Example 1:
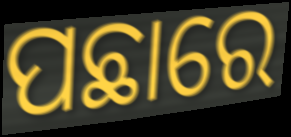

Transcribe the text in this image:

ପଛାରେ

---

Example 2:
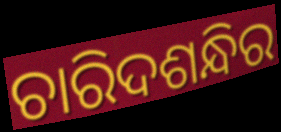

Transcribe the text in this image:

ଚାରିଦଶନ୍ଧିର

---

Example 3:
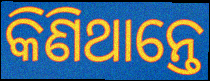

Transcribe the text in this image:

କିଣିଥାନ୍ତେ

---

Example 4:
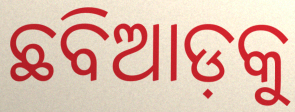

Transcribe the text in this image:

ଛବିଆଡ଼କୁ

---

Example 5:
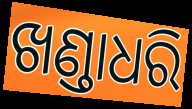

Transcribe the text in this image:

ଖଣ୍ଡାଧରି